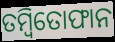
ତମ୍ବିତୋଫାନ